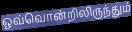
ஒவ்வொன்றிலிருந்தும்